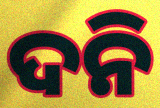
ଦନି